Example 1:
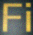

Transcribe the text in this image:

Fi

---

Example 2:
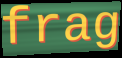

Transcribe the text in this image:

frag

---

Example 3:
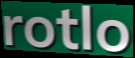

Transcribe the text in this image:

rotlo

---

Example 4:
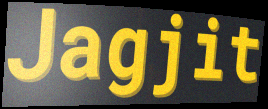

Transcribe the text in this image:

Jagjit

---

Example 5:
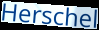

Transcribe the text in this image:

Herschel